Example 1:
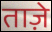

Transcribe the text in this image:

ताज़े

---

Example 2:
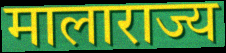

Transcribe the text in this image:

मालाराज्य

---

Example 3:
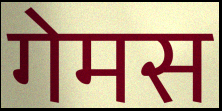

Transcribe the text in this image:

गेमस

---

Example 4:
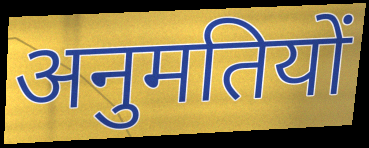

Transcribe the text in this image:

अनुमतियों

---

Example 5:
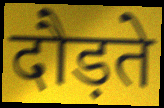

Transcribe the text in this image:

दौड़ते